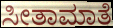
ಸೀತಾಮಾತೆ